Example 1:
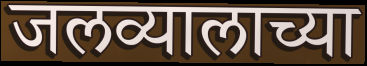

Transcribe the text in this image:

जलव्यालाच्या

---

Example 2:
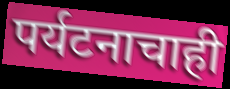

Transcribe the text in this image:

पर्यटनाचाही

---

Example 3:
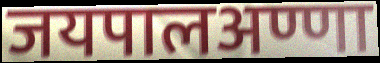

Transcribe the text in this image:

जयपालअण्णा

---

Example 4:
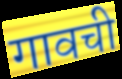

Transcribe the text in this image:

गावची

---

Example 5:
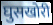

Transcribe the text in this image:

घुसखोरी